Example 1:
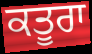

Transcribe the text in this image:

ਕਤੂਰਾ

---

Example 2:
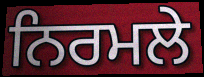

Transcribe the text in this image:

ਨਿਰਮਲੇ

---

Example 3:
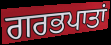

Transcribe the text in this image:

ਗਰਭਪਾਤਾਂ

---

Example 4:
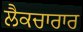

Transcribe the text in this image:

ਲੈਕਚਾਰਾਰ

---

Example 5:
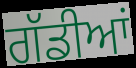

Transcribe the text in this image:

ਗੱਡੀਆਂ